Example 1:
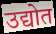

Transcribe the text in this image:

उद्योत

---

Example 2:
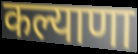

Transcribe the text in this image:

कल्याणा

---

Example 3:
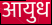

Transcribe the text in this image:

आयुध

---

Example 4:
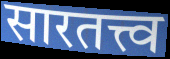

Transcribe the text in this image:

सारतत्त्व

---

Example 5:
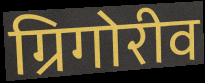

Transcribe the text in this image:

ग्रिगोरीव